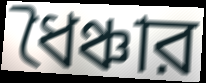
ধৈঞ্চার